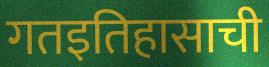
गतइतिहासाची